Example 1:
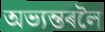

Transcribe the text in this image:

অভ্যন্তৰলৈ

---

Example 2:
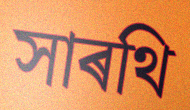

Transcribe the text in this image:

সাৰথি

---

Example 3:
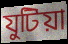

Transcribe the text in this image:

যুটিয়া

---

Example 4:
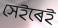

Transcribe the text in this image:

সেইৰেই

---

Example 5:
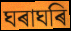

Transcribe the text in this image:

ঘৰাঘৰি